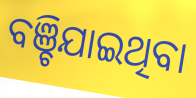
ବଞ୍ଚିଯାଇଥିବା